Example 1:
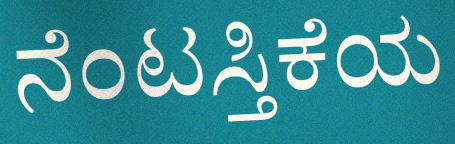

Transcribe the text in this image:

ನೆಂಟಸ್ತಿಕೆಯ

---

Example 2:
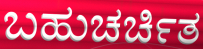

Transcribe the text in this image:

ಬಹುಚರ್ಚಿತ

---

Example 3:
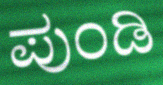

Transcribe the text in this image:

ಪುಂಡಿ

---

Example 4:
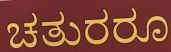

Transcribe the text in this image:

ಚತುರರೂ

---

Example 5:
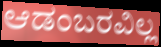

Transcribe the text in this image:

ಆಡಂಬರವಿಲ್ಲ